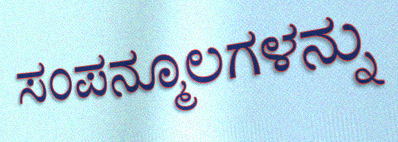
ಸಂಪನ್ಮೂಲಗಳನ್ನು